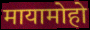
मायामोहो